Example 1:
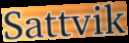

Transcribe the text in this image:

Sattvik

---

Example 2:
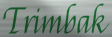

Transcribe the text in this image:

Trimbak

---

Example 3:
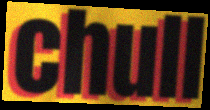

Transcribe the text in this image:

chull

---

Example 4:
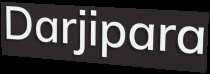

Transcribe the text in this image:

Darjipara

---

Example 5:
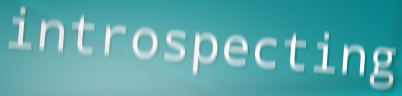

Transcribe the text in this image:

introspecting